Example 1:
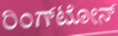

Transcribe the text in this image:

ರಿಂಗ್‌ಟೋನ್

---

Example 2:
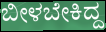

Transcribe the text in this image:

ಬೀಳಬೇಕಿದ್ದ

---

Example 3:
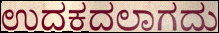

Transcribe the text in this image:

ಉದಕದಲಾಗದು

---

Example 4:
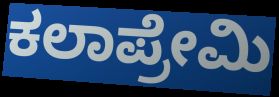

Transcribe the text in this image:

ಕಲಾಪ್ರೇಮಿ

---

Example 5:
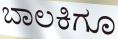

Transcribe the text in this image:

ಬಾಲಕಿಗೂ